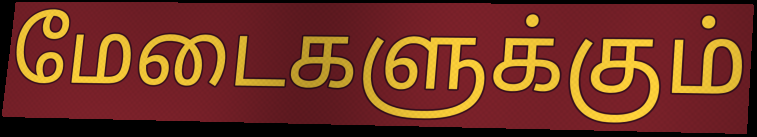
மேடைகளுக்கும்